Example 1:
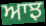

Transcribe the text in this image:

ਆਝ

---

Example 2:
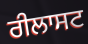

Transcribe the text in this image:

ਰੀਲਾਸਟ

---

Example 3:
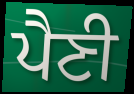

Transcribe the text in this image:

ਪੈਣੀ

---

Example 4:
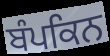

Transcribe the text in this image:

ਬੰਪਕਿਨ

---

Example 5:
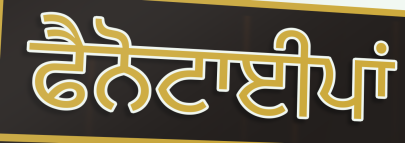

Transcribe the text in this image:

ਫੈਨੋਟਾਈਪਾਂ